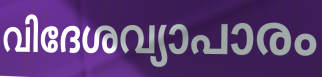
വിദേശവ്യാപാരം